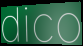
dico